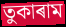
তুকাৰাম